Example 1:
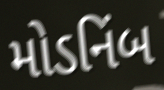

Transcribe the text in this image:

મોડનિંબ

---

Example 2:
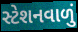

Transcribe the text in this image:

સ્ટેશનવાળું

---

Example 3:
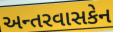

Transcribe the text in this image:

અન્તરવાસકેન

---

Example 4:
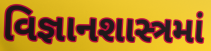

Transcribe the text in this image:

વિજ્ઞાનશાસ્ત્રમાં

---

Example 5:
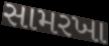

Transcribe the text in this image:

સામરખા